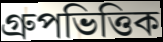
গ্রুপভিত্তিক